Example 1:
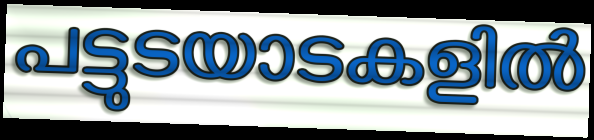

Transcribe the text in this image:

പട്ടുടയാടകളിൽ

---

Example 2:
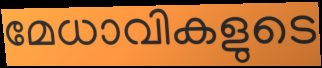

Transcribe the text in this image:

മേധാവികളുടെ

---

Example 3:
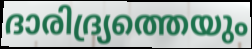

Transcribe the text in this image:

ദാരിദ്ര്യത്തെയും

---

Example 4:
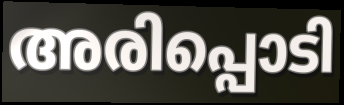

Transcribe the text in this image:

അരിപ്പൊടി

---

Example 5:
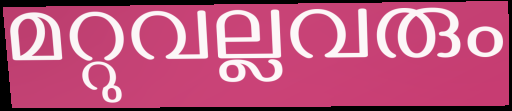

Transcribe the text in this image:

മറ്റുവല്ലവരും